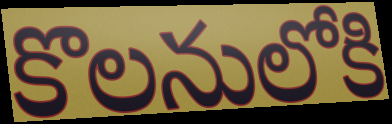
కొలనులోకి